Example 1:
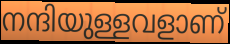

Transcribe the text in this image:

നന്ദിയുള്ളവളാണ്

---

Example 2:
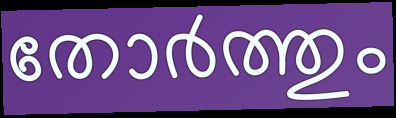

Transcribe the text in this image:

തോർത്തും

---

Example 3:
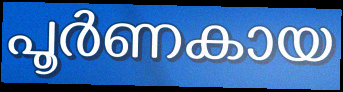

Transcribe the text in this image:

പൂർണകായ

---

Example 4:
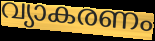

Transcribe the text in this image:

വ്യാകരണം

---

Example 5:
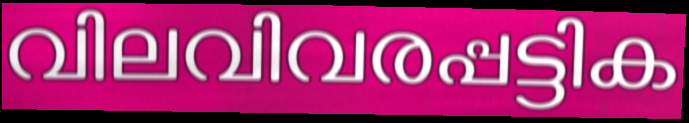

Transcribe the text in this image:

വിലവിവരപ്പട്ടിക